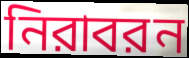
নিরাবরন